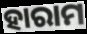
ହାରାମ